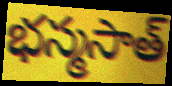
భస్మసాత్